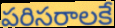
పరిసరాలకే